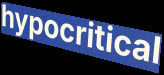
hypocritical